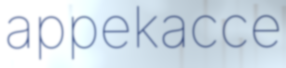
appekacce